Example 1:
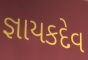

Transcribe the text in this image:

જ્ઞાયકદેવ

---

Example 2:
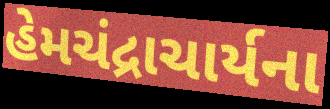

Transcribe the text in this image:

હેમચંદ્રાચાર્યના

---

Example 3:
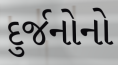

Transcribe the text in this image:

દુર્જનોનો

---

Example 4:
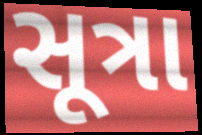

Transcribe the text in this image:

સૂત્રા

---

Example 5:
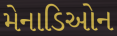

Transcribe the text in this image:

મેનાડિઓન